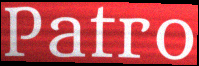
Patro